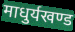
माधुर्यखण्ड